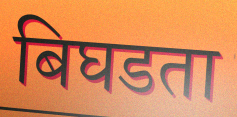
बिघडता